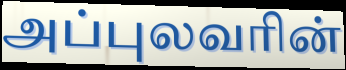
அப்புலவரின்